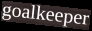
goalkeeper